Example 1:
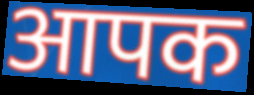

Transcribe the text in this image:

आपक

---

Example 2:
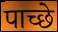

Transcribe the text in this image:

पाच्छे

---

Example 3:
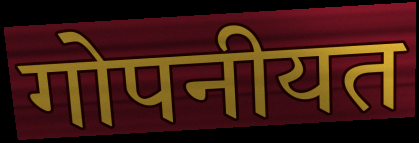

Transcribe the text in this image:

गोपनीयत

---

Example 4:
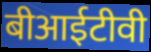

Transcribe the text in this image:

बीआईटीवी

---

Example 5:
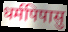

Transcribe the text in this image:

धर्मपिपासु